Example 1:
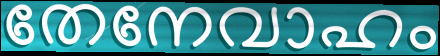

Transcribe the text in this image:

തേനേവാഹം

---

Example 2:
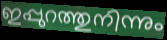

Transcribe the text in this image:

ഇപ്പുറത്തുനിന്നും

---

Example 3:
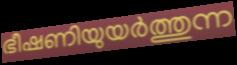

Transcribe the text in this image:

ഭീഷണിയുയർത്തുന്ന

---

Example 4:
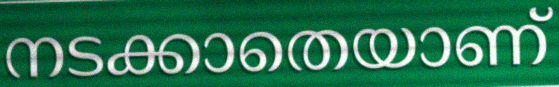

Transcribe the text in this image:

നടക്കാതെയാണ്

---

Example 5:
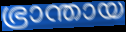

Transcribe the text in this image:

ഭ്രാന്തായ